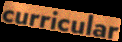
curricular